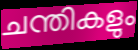
ചന്തികളും